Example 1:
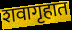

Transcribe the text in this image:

शवागृहात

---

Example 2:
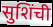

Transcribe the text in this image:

सुशिंची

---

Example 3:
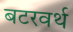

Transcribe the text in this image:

बटरवर्थ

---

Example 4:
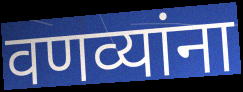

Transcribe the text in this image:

वणव्यांना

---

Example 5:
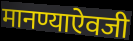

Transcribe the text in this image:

मानण्याऐवजी